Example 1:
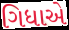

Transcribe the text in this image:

ગિધાએ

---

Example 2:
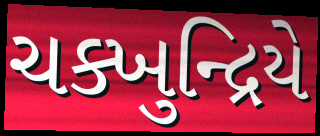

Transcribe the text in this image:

ચક્ખુન્દ્રિયે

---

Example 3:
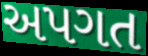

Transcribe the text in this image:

અપગત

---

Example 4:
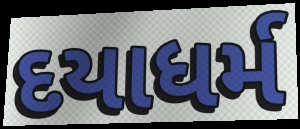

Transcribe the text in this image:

દયાધર્મ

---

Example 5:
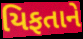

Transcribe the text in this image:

યિફતાને